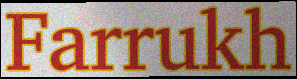
Farrukh